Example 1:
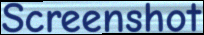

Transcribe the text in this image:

Screenshot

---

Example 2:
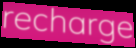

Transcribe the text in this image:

recharge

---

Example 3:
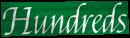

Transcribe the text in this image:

Hundreds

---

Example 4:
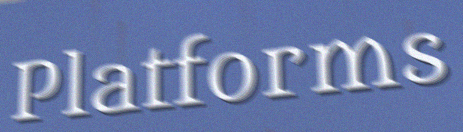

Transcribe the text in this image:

Platforms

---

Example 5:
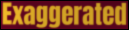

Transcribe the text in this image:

Exaggerated